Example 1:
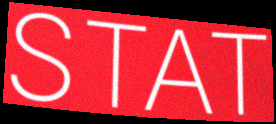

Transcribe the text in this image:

STAT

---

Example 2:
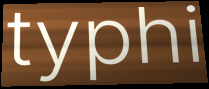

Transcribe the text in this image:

typhi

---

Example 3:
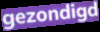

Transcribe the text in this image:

gezondigd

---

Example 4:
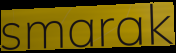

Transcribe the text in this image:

smarak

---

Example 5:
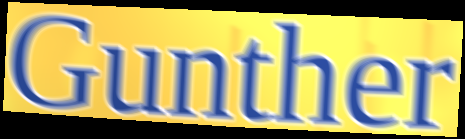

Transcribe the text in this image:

Gunther